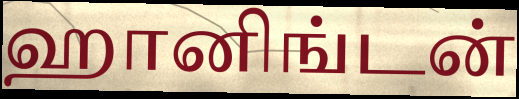
ஹானிங்டன்